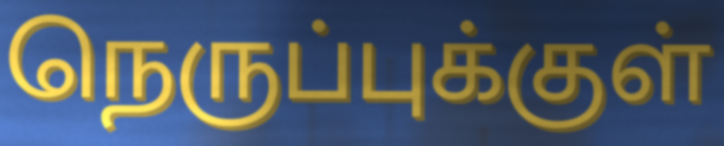
நெருப்புக்குள்